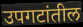
उपगटांतील